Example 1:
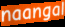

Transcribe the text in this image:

naangal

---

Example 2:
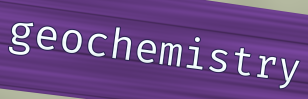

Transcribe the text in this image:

geochemistry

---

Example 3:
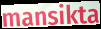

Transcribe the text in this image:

mansikta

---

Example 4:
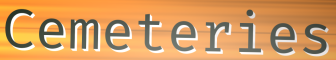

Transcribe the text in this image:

Cemeteries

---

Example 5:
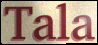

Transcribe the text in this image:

Tala